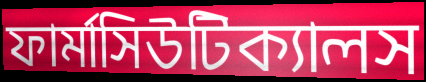
ফার্মাসিউটিক্যালস